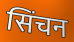
सिंचन